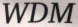
WDM